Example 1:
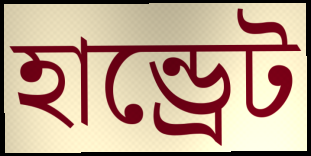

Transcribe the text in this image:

হান্ড্রেট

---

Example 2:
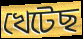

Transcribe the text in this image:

খেটেছ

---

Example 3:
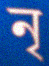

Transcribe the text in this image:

নৃ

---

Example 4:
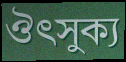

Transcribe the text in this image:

ঔৎসুক্য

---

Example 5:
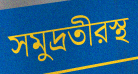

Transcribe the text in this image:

সমুদ্রতীরস্থ